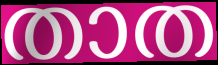
താത